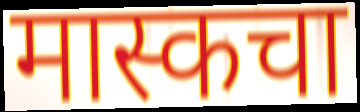
मास्कचा